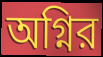
অগ্নির